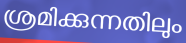
ശ്രമിക്കുന്നതിലും